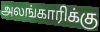
அலங்காரிக்கு